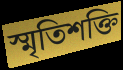
স্মৃতিশক্তি